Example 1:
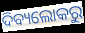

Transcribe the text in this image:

ଦିବ୍ୟଲୋକରୁ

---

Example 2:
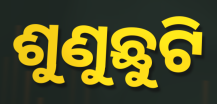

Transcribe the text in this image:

ଶୁଣୁଛୁଟି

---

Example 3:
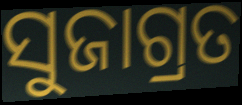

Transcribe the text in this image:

ସୁଜାଗ୍ରତ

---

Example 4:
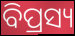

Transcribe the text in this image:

ବିପ୍ରସ୍ୟ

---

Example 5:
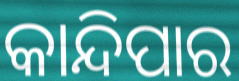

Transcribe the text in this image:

କାନ୍ଦିପାର